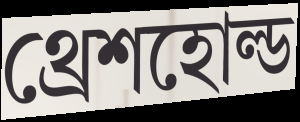
থ্রেশহোল্ড